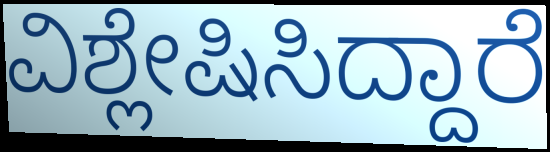
ವಿಶ್ಲೇಷಿಸಿದ್ದಾರೆ